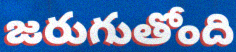
జరుగుతోంది